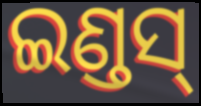
ଇଣ୍ଡସ୍